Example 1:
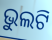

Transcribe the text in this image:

ଭୁଲଟି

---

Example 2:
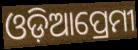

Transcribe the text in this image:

ଓଡ଼ିଆପ୍ରେମୀ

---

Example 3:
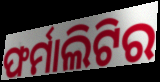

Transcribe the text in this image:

ଫର୍ମାଲିଟିର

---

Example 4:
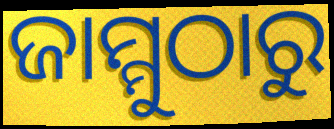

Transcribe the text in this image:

ଜାମ୍ମୁଠାରୁ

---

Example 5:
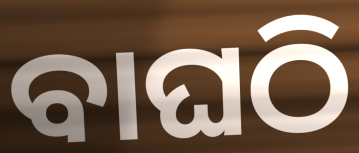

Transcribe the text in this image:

ବାଘଠି